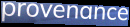
provenance